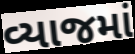
વ્યાજમાં